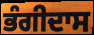
ਭੰਗੀਦਾਸ